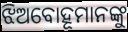
ଝିଅବୋହୂମାନଙ୍କୁ